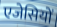
एजेसियों